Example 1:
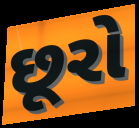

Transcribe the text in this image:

છૂરો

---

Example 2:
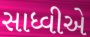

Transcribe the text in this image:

સાધ્વીએ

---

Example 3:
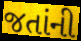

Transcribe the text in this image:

જતાંની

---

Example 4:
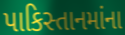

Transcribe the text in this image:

પાકિસ્તાનમાંના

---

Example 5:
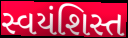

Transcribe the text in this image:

સ્વયંશિસ્ત